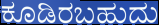
ಕೂಡಿರಬಹುದು